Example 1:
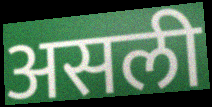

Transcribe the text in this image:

असली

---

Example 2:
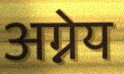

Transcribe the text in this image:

अग्नेय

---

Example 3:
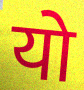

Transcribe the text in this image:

यो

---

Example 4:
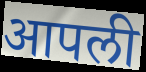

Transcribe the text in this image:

आपली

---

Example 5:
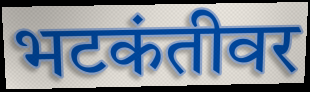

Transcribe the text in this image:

भटकंतीवर